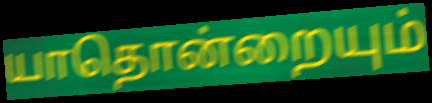
யாதொன்றையும்